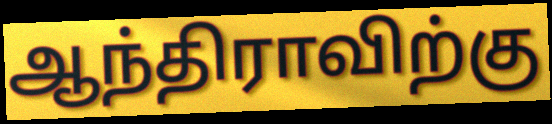
ஆந்திராவிற்கு